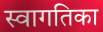
स्वागतिका